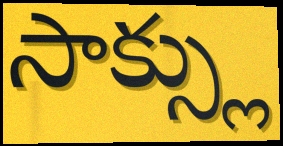
సాక్స్లు